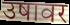
उषावर